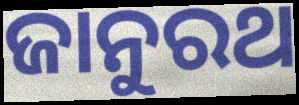
ଜାନୁରଥ